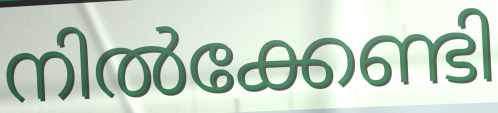
നിൽക്കേണ്ടി